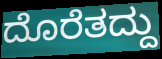
ದೊರೆತದ್ದು